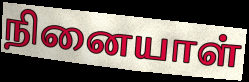
நினையாள்